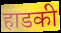
हाडकी